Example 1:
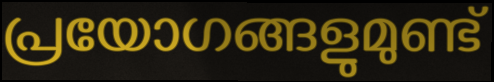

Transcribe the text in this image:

പ്രയോഗങ്ങളുമുണ്ട്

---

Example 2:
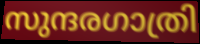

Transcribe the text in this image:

സുന്ദരഗാത്രി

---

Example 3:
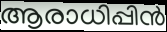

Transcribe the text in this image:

ആരാധിപ്പിൻ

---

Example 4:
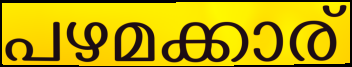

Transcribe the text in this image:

പഴമക്കാര്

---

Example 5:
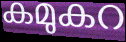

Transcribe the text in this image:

കമുകറ